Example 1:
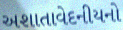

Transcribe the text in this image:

અશાતાવેદનીયનો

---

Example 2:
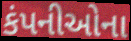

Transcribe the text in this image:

કંપનીઓના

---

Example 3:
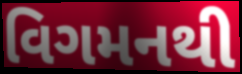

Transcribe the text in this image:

વિગમનથી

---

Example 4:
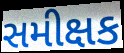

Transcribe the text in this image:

સમીક્ષક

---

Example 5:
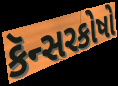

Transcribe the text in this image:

કૅન્સરકોષો